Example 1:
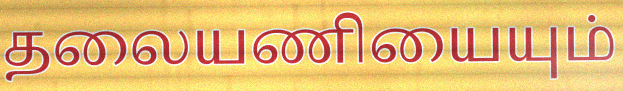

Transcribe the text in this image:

தலையணியையும்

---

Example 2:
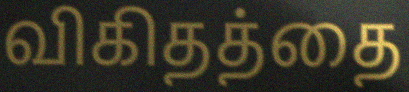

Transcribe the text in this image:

விகிதத்தை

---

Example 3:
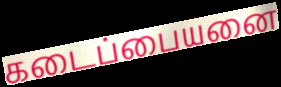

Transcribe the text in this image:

கடைப்பையனை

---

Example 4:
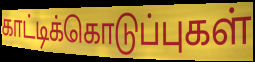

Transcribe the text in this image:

காட்டிக்கொடுப்புகள்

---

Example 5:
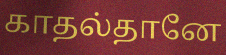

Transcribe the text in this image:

காதல்தானே